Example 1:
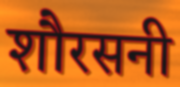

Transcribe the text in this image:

शौरसनी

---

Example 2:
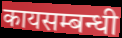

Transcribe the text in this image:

कायसम्बन्धी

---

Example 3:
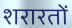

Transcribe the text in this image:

शरारतों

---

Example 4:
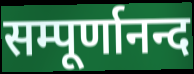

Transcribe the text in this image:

सम्पूर्णानन्द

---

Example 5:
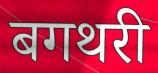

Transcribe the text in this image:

बगथरी